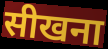
सीखना